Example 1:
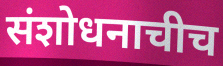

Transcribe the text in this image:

संशोधनाचीच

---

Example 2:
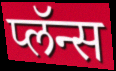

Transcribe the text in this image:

प्लॅन्स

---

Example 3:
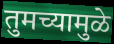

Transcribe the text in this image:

तुमच्यामुळे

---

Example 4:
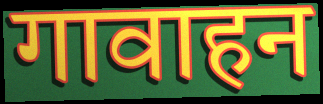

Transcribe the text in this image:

गावाहन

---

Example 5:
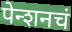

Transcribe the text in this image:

पेन्शनचं